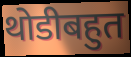
थोडीबहुत